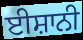
ਈਸ਼ਾਨੀ